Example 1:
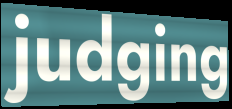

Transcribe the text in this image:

judging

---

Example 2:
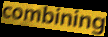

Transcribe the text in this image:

combining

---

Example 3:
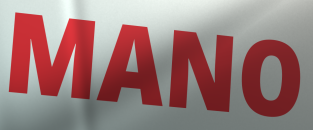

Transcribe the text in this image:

MANO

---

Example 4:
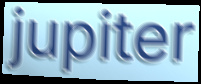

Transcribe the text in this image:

jupiter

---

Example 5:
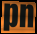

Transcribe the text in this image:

pn